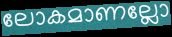
ലോകമാണല്ലോ